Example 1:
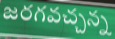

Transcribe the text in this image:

జరగవచ్చన్న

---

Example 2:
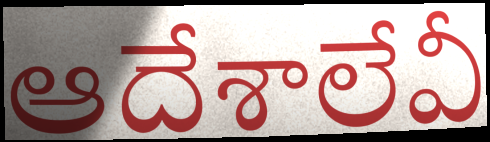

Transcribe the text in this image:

ఆదేశాలేవీ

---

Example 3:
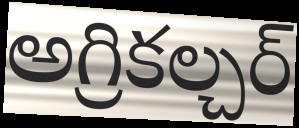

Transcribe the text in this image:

అగ్రికల్చర్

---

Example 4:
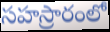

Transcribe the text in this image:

సహస్రారంలో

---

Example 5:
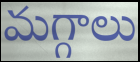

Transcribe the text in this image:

మగ్గాలు